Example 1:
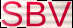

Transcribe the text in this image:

SBV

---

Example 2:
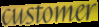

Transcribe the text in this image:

customer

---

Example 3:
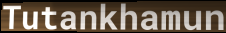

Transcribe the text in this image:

Tutankhamun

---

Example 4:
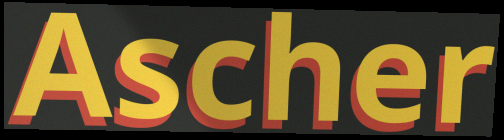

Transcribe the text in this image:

Ascher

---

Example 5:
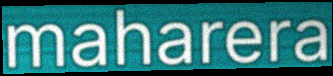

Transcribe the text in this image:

maharera